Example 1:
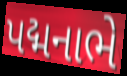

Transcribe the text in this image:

પદ્મનાભે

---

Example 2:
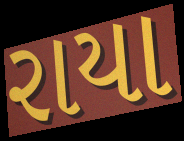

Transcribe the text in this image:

રાયા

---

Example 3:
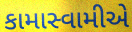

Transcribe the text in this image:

કામાસ્વામીએ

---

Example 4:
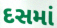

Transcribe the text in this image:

દસમાં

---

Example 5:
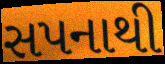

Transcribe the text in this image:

સપનાથી